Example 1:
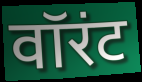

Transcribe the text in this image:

वॉरंट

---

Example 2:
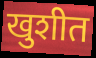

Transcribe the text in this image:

खुशीत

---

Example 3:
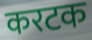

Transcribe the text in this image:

करटक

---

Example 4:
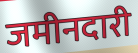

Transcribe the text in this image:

जमीनदारी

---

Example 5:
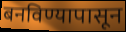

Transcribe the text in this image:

बनविण्यापासून